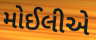
મોઈલીએ